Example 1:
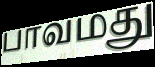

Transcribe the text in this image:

பாவமது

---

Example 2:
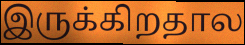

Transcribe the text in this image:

இருக்கிறதால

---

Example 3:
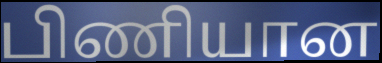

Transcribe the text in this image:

பிணியான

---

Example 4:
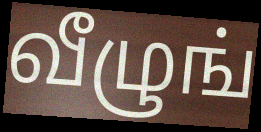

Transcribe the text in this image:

வீழுங்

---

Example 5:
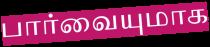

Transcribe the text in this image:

பார்வையுமாக